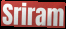
Sriram